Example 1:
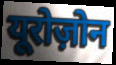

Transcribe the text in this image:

यूरोज़ोन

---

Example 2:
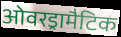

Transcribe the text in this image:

ओवरड्रामैटिक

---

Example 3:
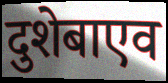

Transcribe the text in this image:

दुशेबाएव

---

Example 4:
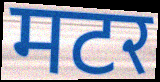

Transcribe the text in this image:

मटर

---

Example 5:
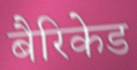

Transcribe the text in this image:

बैरिकेड